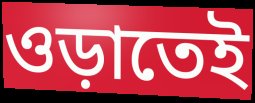
ওড়াতেই